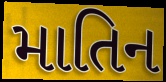
માતિન